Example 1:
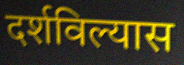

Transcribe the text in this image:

दर्शविल्यास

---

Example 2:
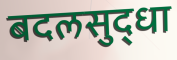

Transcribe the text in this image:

बदलसुद्धा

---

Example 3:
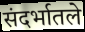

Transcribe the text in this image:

संदर्भातले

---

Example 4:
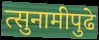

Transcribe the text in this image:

त्सुनामीपुढे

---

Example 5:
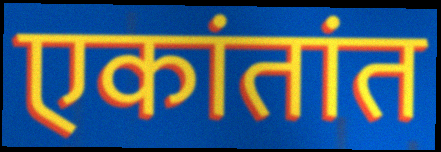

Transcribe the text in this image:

एकांतांत